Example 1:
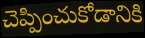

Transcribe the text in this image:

చెప్పించుకోడానికి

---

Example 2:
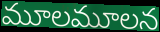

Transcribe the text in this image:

మూలమూలన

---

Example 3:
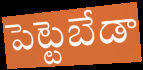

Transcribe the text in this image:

పెట్టెబేడా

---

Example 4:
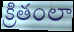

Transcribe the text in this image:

క్రితంలా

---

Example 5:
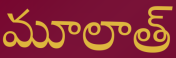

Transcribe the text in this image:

మూలాత్